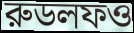
রুডলফও